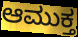
ಆಮುಕ್ತ